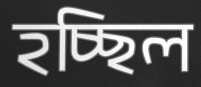
হচ্ছিল